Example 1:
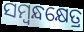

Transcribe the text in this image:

ସମ୍ବନ୍ଧକ୍ଷେତ୍ର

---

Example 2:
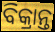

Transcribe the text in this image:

ବିକ୍ରାନ୍ତ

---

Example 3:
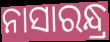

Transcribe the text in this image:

ନାସାରନ୍ଧ୍ର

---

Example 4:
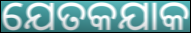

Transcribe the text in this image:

ଯେତକଯାକ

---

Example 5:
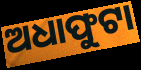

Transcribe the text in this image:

ଅଧାଫୁଟା